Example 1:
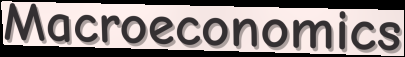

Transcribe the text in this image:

Macroeconomics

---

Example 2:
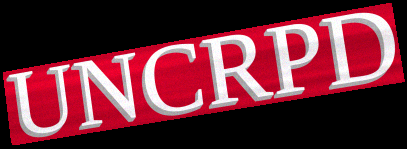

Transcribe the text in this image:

UNCRPD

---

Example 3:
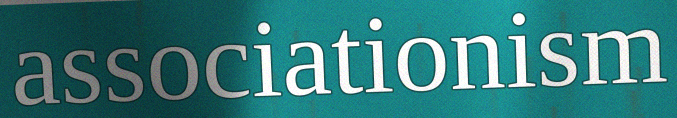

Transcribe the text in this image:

associationism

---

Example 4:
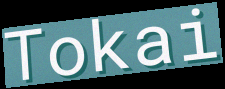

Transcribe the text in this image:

Tokai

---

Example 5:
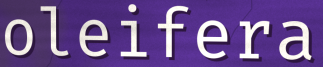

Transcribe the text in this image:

oleifera